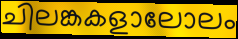
ചിലങ്കകളാലോലം